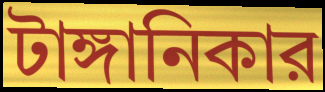
টাঙ্গানিকার